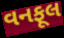
વનફૂલ